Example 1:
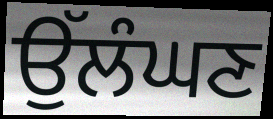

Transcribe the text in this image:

ਉੱਲੰਘਣ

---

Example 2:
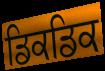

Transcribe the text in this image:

ਡਿਕਡਿਕ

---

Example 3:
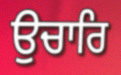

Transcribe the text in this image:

ਉਚਾਰਿ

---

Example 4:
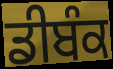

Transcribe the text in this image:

ਡੀਬੰਕ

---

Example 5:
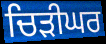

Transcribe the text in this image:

ਚਿੜੀਘਰ